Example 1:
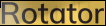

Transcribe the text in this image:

Rotator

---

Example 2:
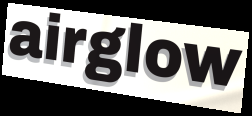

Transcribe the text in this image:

airglow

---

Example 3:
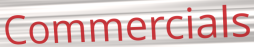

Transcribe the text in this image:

Commercials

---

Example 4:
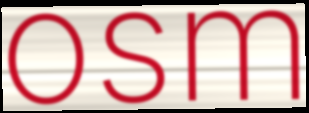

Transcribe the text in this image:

osm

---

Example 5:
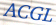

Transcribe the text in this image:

ACGL